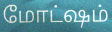
மோட்ஷம்